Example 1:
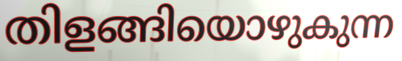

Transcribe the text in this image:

തിളങ്ങിയൊഴുകുന്ന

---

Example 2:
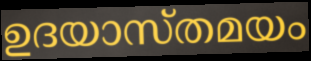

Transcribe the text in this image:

ഉദയാസ്തമയം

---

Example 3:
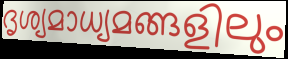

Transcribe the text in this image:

ദൃശ്യമാധ്യമങ്ങളിലും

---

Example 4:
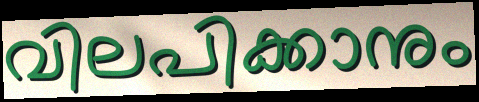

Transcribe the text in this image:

വിലപിക്കാനും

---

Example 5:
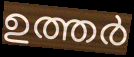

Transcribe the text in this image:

ഉത്തർ